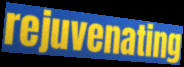
rejuvenating